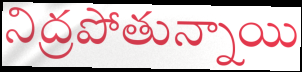
నిద్రపోతున్నాయి